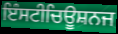
ਇੰਸਟੀਚਿਊਸ਼ਨਜ